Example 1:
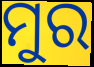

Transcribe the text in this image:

ମୁର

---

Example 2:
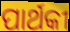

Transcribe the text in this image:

ପାର୍ଥକୀ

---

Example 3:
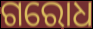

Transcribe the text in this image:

ଗରୋଧ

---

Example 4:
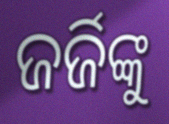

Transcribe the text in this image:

ଜର୍ଜିଙ୍କୁ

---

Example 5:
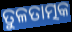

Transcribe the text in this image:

ତୁଳତାତ୍ମକ